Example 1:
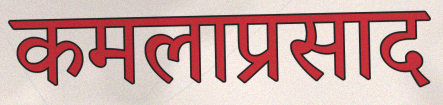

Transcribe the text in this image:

कमलाप्रसाद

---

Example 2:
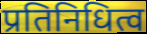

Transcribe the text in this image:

प्रतिनिधित्व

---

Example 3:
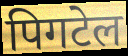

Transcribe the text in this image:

पिगटेल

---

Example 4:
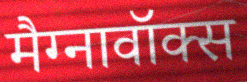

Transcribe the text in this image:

मैग्नावॉक्स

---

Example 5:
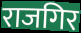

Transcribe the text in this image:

राजगिर